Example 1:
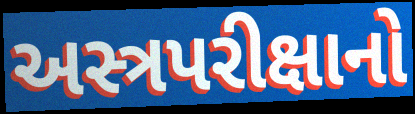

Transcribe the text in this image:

અસ્ત્રપરીક્ષાનો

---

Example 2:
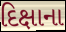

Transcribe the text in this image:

દિક્ષાના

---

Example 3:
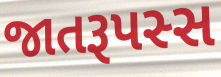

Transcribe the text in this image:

જાતરૂપસ્સ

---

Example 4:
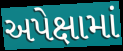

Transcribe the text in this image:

અપેક્ષામાં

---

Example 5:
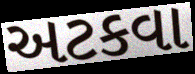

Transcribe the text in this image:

અટકવા